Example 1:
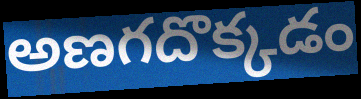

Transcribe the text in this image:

అణగదొక్కడం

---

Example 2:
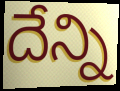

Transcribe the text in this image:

దేన్ని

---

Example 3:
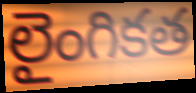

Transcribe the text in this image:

లైంగికత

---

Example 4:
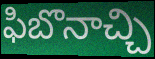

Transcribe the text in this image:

ఫిబొనాచ్చి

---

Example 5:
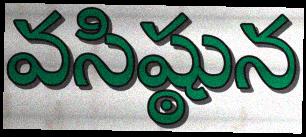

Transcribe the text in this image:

వసిష్ఠున